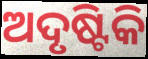
ଅଦୃଷ୍ଟିକି